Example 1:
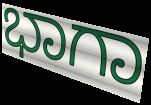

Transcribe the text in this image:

ಭಾಗಾ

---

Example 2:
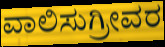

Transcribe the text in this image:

ವಾಲಿಸುಗ್ರೀವರ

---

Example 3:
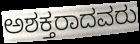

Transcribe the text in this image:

ಅಶಕ್ತರಾದವರು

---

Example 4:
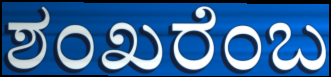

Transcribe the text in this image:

ಶಂಖರೆಂಬ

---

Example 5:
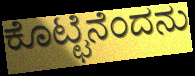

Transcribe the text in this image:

ಕೊಟ್ಟೆನೆಂದನು